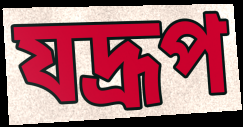
যদ্রূপ